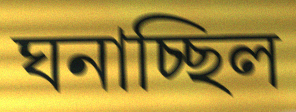
ঘনাচ্ছিল